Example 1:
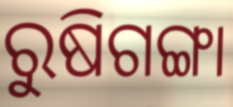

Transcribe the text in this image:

ରୁଷିଗଙ୍ଗା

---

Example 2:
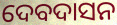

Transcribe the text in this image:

ଦେବଦାସନ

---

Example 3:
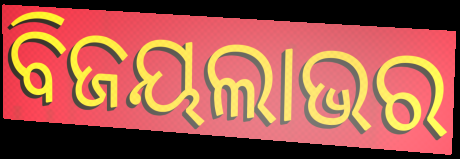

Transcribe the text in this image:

ବିଜୟଲାଭର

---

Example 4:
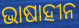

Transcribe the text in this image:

ଭାଷାହୀନ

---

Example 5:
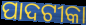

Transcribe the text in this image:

ପାଦଟୀକା